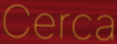
Cerca